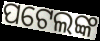
ପଟେଲଙ୍କ